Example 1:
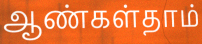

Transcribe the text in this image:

ஆண்கள்தாம்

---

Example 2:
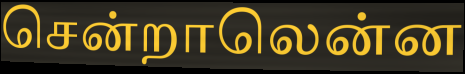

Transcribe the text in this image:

சென்றாலென்ன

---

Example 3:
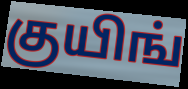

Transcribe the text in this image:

குயிங்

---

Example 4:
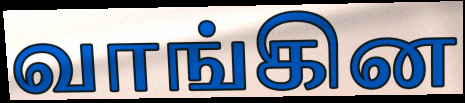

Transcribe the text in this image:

வாங்கின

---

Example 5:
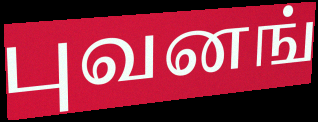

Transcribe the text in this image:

புவனங்